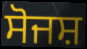
ਸੋਜਸ਼